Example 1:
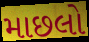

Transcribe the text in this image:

માછલો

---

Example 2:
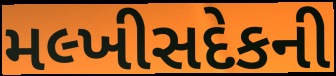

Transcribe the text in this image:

મલ્ખીસદેકની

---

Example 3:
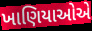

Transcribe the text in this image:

ખાણિયાઓએ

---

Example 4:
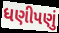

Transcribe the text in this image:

ધણીપણું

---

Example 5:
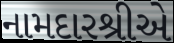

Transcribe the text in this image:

નામદારશ્રીએ